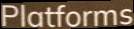
Platforms